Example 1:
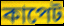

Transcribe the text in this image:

কাপেট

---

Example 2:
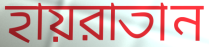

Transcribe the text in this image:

হায়রাতান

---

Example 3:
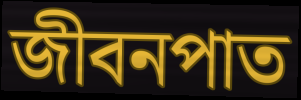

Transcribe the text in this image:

জীবনপাত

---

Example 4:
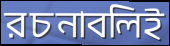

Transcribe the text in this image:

রচনাবলিই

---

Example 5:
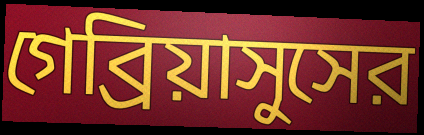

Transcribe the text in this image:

গেব্রিয়াসুসের